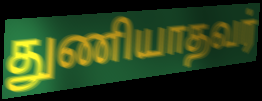
துணியாதவர்